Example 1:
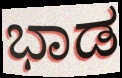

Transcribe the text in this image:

ಭಾಡ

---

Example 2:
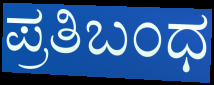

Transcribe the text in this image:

ಪ್ರತಿಬಂಧ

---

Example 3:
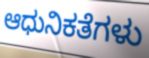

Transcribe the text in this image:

ಆಧುನಿಕತೆಗಳು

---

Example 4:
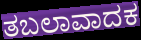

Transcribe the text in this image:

ತಬಲಾವಾದಕ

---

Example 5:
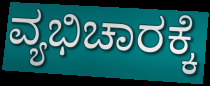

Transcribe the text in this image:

ವ್ಯಭಿಚಾರಕ್ಕೆ